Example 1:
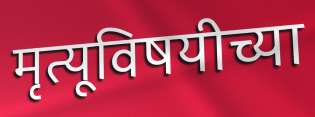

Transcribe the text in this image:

मृत्यूविषयीच्या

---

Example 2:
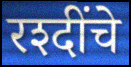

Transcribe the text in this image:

रश्दींचे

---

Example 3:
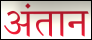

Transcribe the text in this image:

अंतान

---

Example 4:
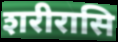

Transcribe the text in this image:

शरीरासि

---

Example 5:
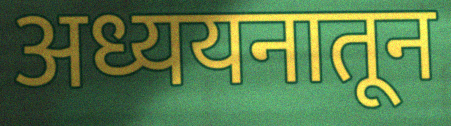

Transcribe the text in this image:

अध्ययनातून